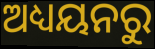
ଅଧ୍ୟୟନରୁ